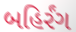
બહિર્રંગ